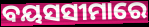
ବୟସସୀମାରେ